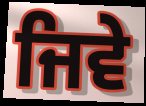
ਜਿਵੇ